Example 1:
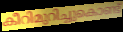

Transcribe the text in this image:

കീറിമുറിച്ചുകൊണ്ട്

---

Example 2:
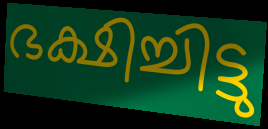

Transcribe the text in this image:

ഭക്ഷിച്ചിട്ടു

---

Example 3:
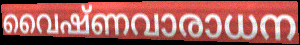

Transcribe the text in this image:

വൈഷ്ണവാരാധന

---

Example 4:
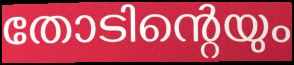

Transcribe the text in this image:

തോടിന്റെയും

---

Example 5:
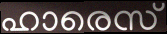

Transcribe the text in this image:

ഹാരെസ്